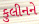
કુલીનને